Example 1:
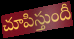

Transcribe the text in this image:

చూపిస్తుందీ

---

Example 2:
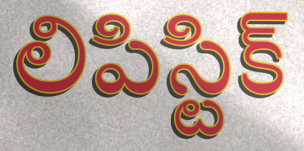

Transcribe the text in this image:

లిపిస్టిక్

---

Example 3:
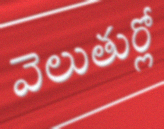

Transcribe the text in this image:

వెలుతుర్లో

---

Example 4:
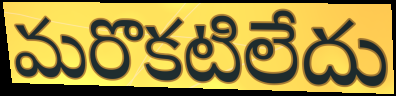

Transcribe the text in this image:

మరొకటిలేదు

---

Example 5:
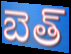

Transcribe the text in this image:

బెత్